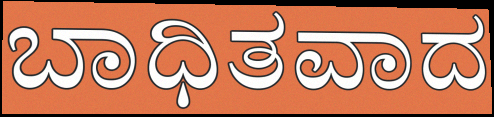
ಬಾಧಿತವಾದ